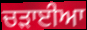
ਚੜਾਈਆ